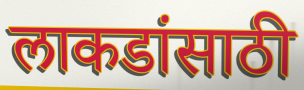
लाकडांसाठी